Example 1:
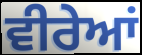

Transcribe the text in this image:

ਵੀਰੇਆਂ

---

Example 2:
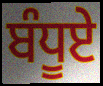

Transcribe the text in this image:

ਬੰਧੂਏ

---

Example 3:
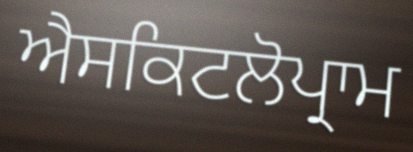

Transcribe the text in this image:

ਐਸਕਿਟਲੋਪ੍ਰਾਮ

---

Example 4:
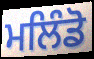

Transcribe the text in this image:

ਮਲਿੰਡੋ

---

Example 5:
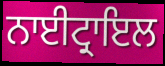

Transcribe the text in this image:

ਨਾਈਟ੍ਰਾਇਲ